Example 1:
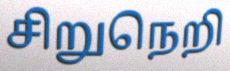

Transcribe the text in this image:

சிறுநெறி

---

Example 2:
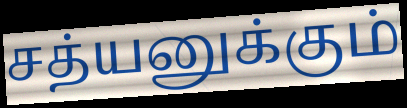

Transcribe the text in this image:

சத்யனுக்கும்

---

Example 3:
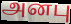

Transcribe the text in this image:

அனபு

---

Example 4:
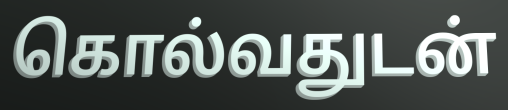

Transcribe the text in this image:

கொல்வதுடன்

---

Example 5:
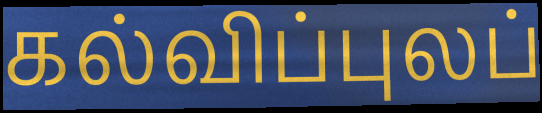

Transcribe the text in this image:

கல்விப்புலப்